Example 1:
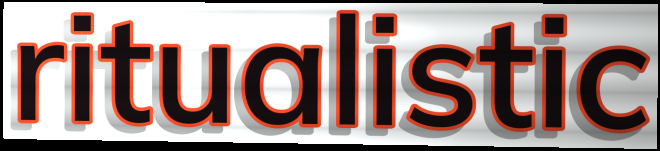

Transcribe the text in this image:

ritualistic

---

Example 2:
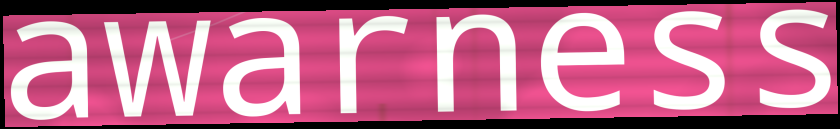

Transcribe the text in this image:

awarness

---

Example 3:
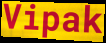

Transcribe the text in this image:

Vipak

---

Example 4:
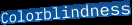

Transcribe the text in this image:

Colorblindness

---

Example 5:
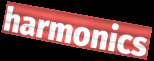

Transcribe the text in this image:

harmonics